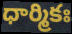
ధార్మికః